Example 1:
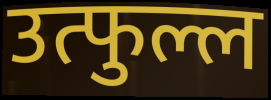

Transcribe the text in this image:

उत्फुल्ल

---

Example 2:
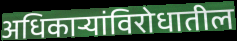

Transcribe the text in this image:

अधिकाऱ्यांविरोधातील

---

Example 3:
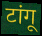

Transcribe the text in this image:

टांगू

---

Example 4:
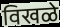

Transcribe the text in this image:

विखळे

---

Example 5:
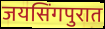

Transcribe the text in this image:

जयसिंगपुरात